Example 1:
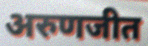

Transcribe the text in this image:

अरुणजीत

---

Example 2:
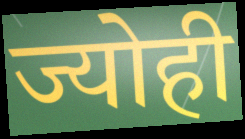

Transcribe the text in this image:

ज्योही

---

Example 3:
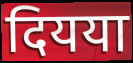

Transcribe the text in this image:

दियया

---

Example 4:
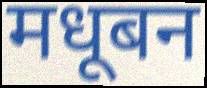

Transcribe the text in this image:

मधूबन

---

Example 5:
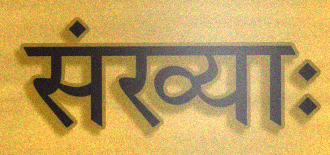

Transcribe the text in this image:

संख्याः